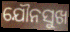
ଯୌନସୁଖ